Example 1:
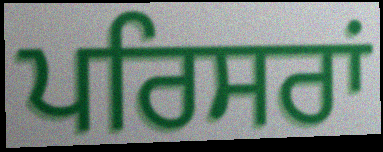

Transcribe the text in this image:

ਪਰਿਸਰਾਂ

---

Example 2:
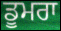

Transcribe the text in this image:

ਡੂਮਰਾ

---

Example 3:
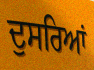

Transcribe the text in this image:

ਦੁਸਰਿਆਂ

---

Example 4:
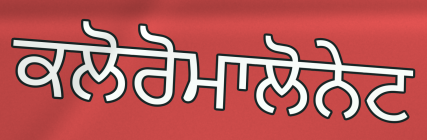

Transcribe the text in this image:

ਕਲੋਰੋਮਾਲੋਨੇਟ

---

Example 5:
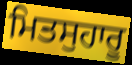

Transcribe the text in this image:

ਮਿਤਸੁਹਾਰੂ